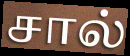
சால்